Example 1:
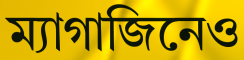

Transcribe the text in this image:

ম্যাগাজিনেও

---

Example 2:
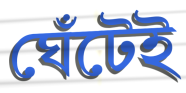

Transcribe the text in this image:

ঘেঁটেই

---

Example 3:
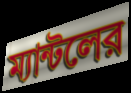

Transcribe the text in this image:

ম্যান্টলের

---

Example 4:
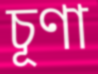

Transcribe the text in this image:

চূণা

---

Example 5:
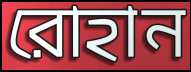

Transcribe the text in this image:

রোহান